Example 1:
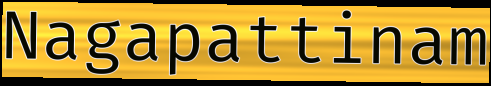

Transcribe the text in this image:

Nagapattinam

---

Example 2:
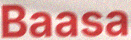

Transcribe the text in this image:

Baasa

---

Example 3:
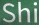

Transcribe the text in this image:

Shi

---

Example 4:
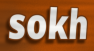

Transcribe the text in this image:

sokh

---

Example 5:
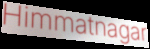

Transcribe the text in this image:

Himmatnagar